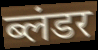
ब्लंडर